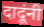
दादूंनी